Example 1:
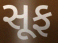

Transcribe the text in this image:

સૂફ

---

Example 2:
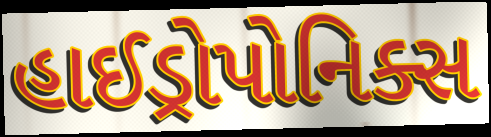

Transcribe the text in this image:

હાઈડ્રોપોનિક્સ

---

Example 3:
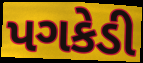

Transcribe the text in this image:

પગકેડી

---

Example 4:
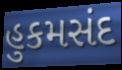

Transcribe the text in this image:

હુકમસંદ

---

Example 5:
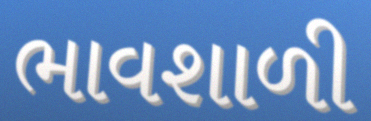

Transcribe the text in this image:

ભાવશાળી